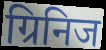
ग्रिनिज